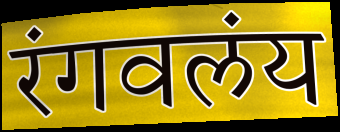
रंगवलंय